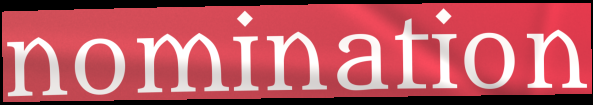
nomination